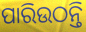
ପାରିଉଠନ୍ତି